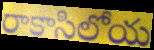
రాకాసిలోయ